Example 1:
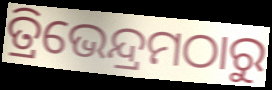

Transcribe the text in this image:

ତ୍ରିଭେନ୍ଦ୍ରମଠାରୁ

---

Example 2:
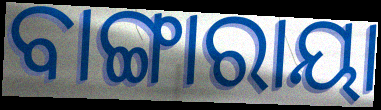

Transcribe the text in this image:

ବାଙ୍ଗାରାୟା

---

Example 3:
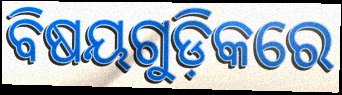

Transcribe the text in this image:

ବିଷୟଗୁଡ଼ିକରେ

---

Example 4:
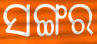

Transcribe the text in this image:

ସଙ୍ଗର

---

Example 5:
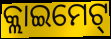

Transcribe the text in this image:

କ୍ଲାଇମେଟ୍